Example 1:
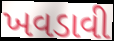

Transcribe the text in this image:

ખવડાવી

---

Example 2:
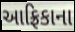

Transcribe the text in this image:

આફ્રિકાના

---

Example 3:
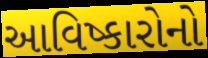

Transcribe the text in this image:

આવિષ્કારોનો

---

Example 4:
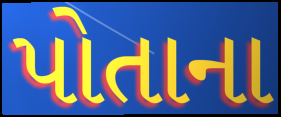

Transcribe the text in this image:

પોતાના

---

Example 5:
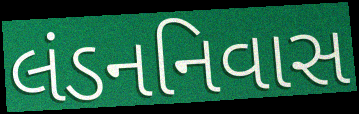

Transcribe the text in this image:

લંડનનિવાસ